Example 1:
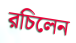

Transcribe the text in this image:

রচিলেন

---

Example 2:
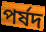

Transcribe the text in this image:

পর্ষদ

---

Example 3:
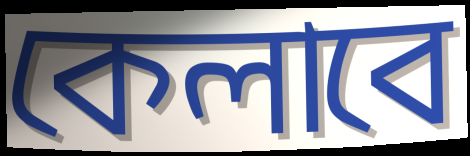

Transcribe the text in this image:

কেলাবে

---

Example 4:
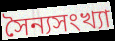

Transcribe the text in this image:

সৈন্যসংখ্যা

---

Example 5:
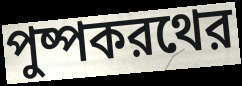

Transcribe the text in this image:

পুষ্পকরথের